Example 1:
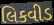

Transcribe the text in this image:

લિકવીડ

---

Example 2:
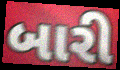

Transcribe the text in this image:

બારી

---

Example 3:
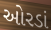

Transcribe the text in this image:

ઓરડાં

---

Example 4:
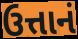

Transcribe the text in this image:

ઉત્તાનં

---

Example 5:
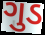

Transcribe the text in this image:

ગુડ